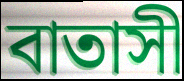
বাতাসী